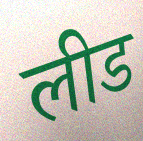
लीड